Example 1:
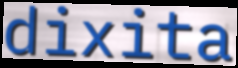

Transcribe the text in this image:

dixita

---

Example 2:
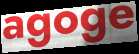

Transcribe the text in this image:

agoge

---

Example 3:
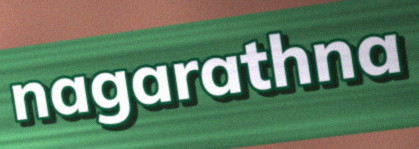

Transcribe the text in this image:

nagarathna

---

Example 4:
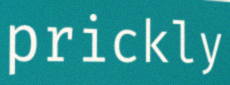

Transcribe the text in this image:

prickly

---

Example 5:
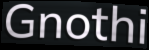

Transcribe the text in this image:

Gnothi